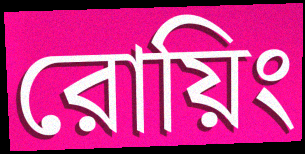
রোয়িং